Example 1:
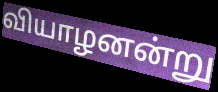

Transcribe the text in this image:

வியாழனன்று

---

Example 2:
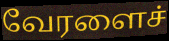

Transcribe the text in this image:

வேரளைச்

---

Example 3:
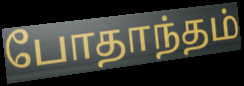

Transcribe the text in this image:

போதாந்தம்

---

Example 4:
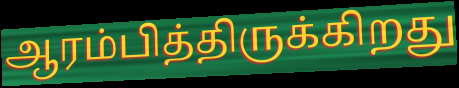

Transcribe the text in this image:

ஆரம்பித்திருக்கிறது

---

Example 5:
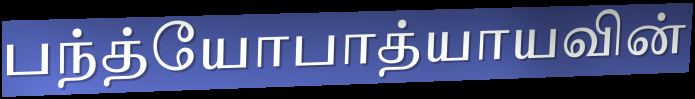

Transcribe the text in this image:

பந்த்யோபாத்யாயவின்